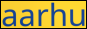
aarhu